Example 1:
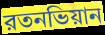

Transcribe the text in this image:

রতনভিয়ান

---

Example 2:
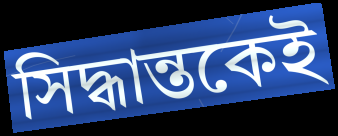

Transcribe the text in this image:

সিদ্ধান্তকেই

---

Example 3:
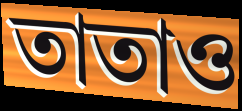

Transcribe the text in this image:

তাতাও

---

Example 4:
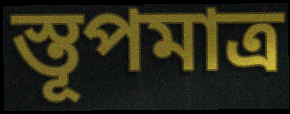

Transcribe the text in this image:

স্তূপমাত্র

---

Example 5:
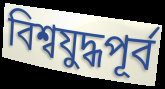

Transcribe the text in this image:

বিশ্বযুদ্ধপূর্ব